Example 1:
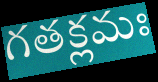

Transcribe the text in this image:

గతక్లమః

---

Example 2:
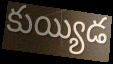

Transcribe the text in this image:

కుయ్యిడ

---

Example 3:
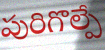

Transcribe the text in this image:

పురిగొల్పే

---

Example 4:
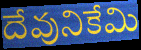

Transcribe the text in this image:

దేవునికేమి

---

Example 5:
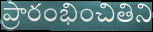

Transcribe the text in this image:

ప్రారంభించితిని